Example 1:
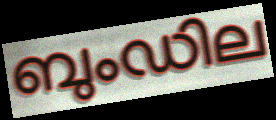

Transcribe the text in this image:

ബുംഡില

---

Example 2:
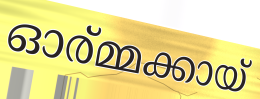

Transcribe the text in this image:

ഓര്മ്മക്കായ്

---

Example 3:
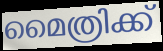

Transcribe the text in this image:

മൈത്രിക്ക്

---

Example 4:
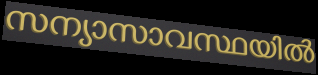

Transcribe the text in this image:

സന്യാസാവസ്ഥയിൽ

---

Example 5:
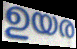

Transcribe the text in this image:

ഉയര